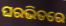
ଘରଭିତରେ